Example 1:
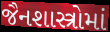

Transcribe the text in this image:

જૈનશાસ્ત્રોમાં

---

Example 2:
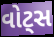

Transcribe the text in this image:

વોટ્સ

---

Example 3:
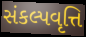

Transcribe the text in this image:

સંકલ્પવૃત્તિ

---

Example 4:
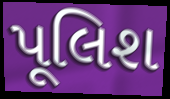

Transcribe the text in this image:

પૂલિશ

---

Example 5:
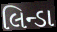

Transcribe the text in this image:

લિન્ડા